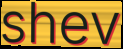
shev